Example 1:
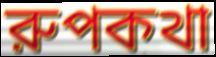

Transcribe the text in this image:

রুপকথা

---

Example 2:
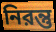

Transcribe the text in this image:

নিরন্তু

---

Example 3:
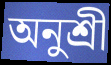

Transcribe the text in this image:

অনুশ্রী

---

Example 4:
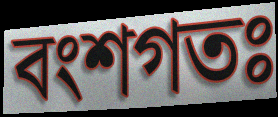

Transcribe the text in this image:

বংশগতঃ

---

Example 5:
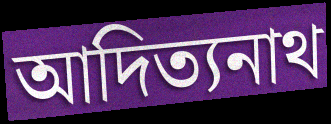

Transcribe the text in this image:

আদিত্যনাথ